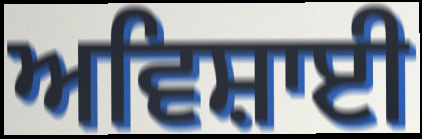
ਅਵਿਸ਼ਾਈ